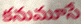
కనుమూసే